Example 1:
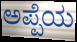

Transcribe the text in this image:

ಅಪ್ಪೆಯ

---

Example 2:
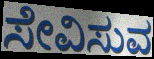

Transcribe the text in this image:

ಸೇವಿಸುವ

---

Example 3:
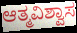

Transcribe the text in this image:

ಆತ್ಮವಿಶ್ವಾಸ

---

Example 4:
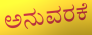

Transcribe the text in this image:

ಅನುವರಕೆ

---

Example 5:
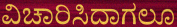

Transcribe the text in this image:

ವಿಚಾರಿಸಿದಾಗಲೂ